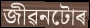
জীৱনটোৰ